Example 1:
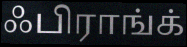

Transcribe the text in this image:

ஃபிராங்க்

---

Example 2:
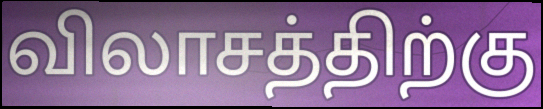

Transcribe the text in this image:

விலாசத்திற்கு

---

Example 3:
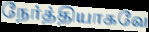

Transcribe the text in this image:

நேர்த்தியாகவே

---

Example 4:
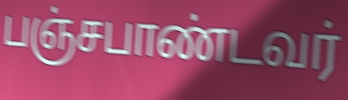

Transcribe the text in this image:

பஞ்சபாண்டவர்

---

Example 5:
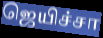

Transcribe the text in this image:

ஜெயிச்சா